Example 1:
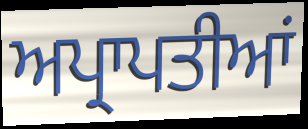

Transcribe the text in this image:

ਅਪ੍ਰਾਪਤੀਆਂ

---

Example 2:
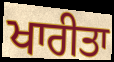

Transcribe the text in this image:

ਖਾਰੀਤਾ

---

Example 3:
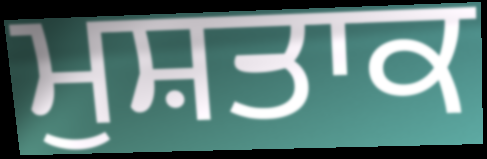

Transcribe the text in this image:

ਮੁਸ਼ਤਾਕ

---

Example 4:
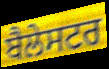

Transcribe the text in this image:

ਬੈਲੇਸਟਰ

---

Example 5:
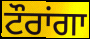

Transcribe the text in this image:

ਟੌਰਾਂਗਾ